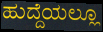
ಹುದ್ದೆಯಲ್ಲೂ